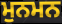
ਮੁਨਮਨ